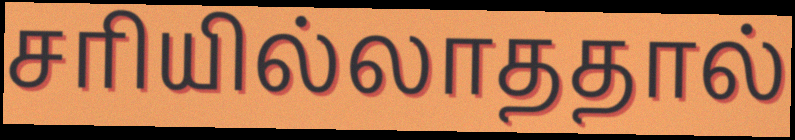
சரியில்லாததால்